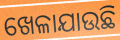
ଖେଳାଯାଉଛି